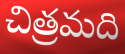
చిత్రమది